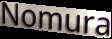
Nomura